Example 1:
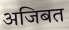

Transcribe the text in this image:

अजिबत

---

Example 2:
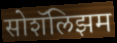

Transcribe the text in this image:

सोशॅलिझम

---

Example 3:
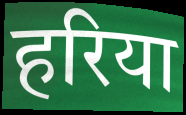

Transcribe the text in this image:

हरिया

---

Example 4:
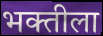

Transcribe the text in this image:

भक्तीला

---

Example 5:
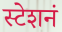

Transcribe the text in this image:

स्टेशनं